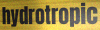
hydrotropic